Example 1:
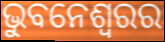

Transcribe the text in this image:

ଭୁବନେଶ୍ଵରର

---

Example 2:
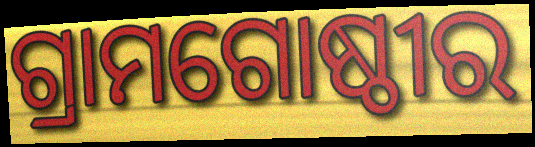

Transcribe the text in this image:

ଗ୍ରାମଗୋଷ୍ଠୀର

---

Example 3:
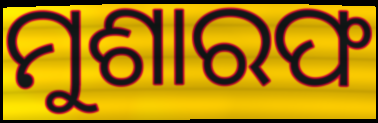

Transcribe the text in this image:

ମୁଶାରଫ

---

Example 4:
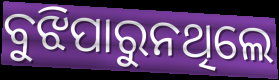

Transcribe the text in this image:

ବୁଝିପାରୁନଥିଲେ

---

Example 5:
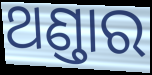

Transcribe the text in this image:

ଥଣ୍ଡାର